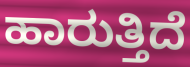
ಹಾರುತ್ತಿದೆ